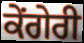
ਕੇਂਗੇਰੀ